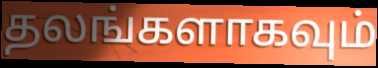
தலங்களாகவும்